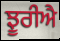
ਝੂਰੀਐ